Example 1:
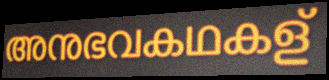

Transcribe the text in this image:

അനുഭവകഥകള്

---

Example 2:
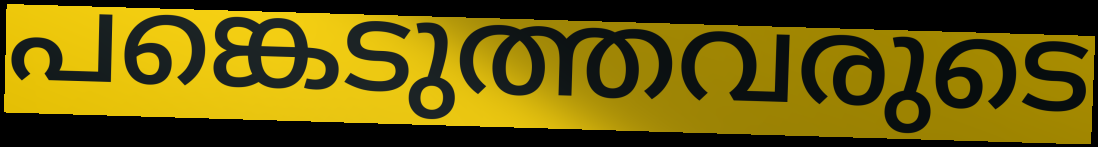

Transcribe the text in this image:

പങ്കെടുത്തവരുടെ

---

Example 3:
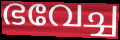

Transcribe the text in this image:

ഭവേച്ച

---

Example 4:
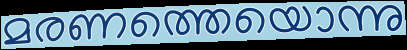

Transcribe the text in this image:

മരണത്തെയൊന്നു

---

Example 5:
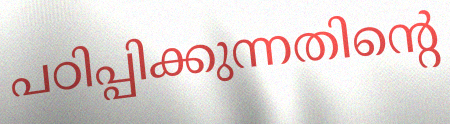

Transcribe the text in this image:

പഠിപ്പിക്കുന്നതിന്റെ